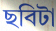
ছবিটা